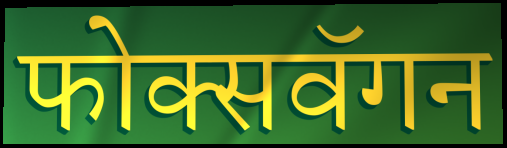
फोक्सवॅगन